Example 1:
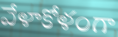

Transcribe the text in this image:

వేళాకోళంగా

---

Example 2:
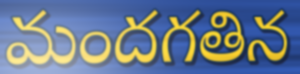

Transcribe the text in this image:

మందగతిన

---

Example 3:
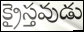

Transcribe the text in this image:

క్రైస్తవుడు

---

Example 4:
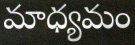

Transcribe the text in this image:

మాధ్యమం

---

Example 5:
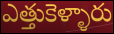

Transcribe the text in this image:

ఎత్తుకెళ్ళారు